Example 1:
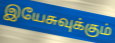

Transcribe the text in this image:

இயேசுவுக்கும்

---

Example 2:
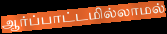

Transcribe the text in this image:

ஆர்ப்பாட்டமில்லாமல்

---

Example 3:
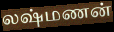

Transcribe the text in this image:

லஷ்மணன்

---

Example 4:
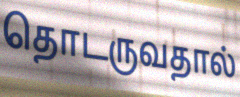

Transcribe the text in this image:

தொடருவதால்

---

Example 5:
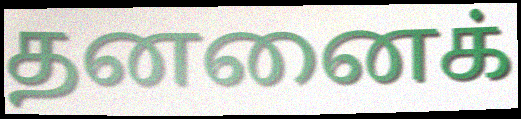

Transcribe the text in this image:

தனனைக்